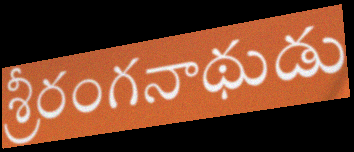
శ్రీరంగనాథుడు